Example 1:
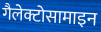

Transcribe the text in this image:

गैलेक्टोसामाइन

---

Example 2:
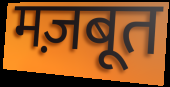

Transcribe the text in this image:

मज़बूत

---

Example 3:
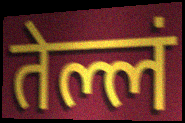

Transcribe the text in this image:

तेल्लं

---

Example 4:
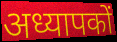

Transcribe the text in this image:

अध्यापकों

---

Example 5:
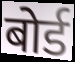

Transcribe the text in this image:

बोर्ड